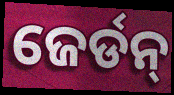
ଜେର୍ଡନ୍